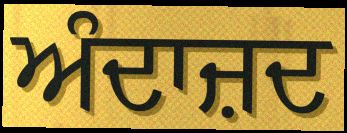
ਅੰਦਾਜ਼ਦ